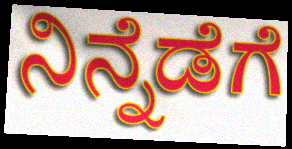
ನಿನ್ನೆಡೆಗೆ